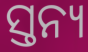
ସ୍ତନ୍ୟ